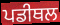
ਪਡੀਥਲ